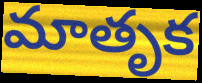
మాతృక